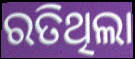
ରତିଥିଲା